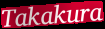
Takakura